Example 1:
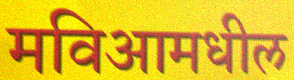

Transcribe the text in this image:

मविआमधील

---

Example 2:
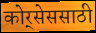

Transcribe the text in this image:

कोर्सेससाठी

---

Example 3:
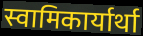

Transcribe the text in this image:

स्वामिकार्यार्था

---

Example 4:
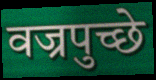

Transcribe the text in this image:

वज्रपुच्छे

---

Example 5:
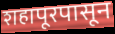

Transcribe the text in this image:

शहापूरपासून